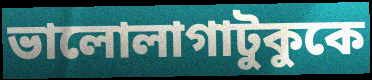
ভালোলাগাটুকুকে